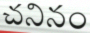
చనినం